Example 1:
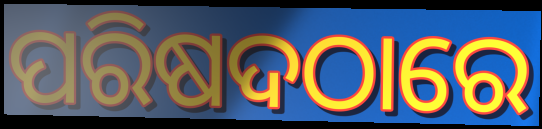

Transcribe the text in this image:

ପରିଷଦଠାରେ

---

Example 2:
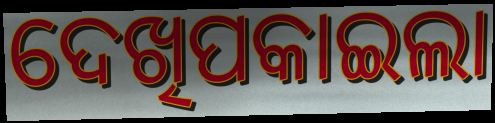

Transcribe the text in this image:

ଦେଖିପକାଇଲା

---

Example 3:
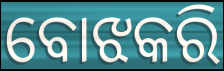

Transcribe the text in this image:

ବୋଝକରି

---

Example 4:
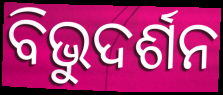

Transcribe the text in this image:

ବିଭୁଦର୍ଶନ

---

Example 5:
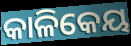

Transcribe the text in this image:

କାଳିକେୟ